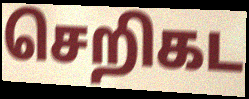
செறிகட